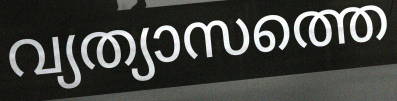
വ്യത്യാസത്തെ